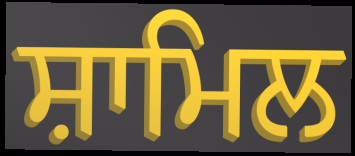
ਸ਼ਾਮਿਲ